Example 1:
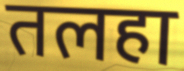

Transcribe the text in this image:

तलहा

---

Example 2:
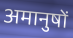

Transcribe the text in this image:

अमानुषों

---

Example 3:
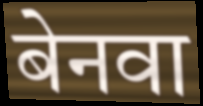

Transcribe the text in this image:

बेनवा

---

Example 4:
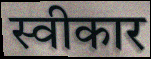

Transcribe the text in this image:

स्‍वीकार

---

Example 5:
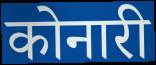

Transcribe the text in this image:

कोनारी